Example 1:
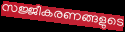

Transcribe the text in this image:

സജ്ജീകരണങ്ങളുടെ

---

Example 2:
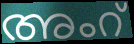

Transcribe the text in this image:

അംറ്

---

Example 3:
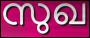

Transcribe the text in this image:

സുഖ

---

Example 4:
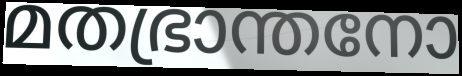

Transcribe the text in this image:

മതഭ്രാന്തനോ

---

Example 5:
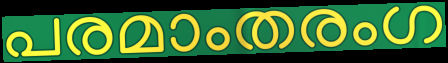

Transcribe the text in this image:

പരമാംതരംഗ